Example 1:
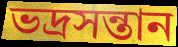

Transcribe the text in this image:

ভদ্রসন্তান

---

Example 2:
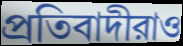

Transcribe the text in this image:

প্রতিবাদীরাও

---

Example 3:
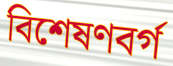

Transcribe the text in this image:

বিশেষণবর্গ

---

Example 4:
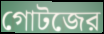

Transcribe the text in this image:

গোটজের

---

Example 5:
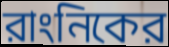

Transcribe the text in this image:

রাংনিকের